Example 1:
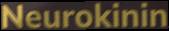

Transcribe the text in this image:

Neurokinin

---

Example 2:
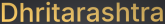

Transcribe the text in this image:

Dhritarashtra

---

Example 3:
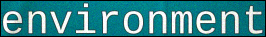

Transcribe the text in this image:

environment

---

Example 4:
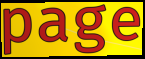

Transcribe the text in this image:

page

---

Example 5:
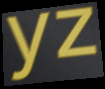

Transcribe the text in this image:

yz